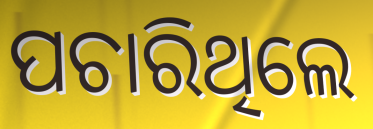
ପଚାରିଥିଲେ